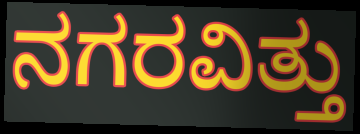
ನಗರವಿತ್ತು